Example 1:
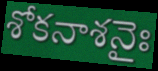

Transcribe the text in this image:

శోకనాశనైః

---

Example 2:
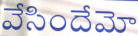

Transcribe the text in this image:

వేసిందేమో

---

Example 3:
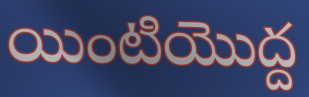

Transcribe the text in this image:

యింటియొద్ద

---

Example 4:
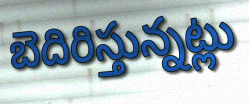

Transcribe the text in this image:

బెదిరిస్తున్నట్లు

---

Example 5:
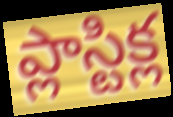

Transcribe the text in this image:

ప్లాస్టిక్ల